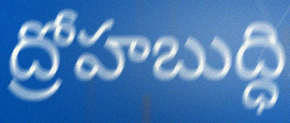
ద్రోహబుద్ధి